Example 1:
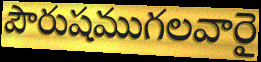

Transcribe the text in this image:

పౌరుషముగలవారై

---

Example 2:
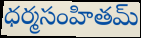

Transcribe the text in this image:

ధర్మసంహితమ్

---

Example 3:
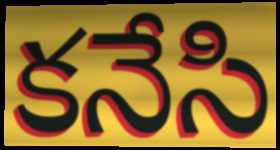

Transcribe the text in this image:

కనేసి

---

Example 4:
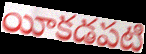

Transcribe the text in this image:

యీకడపటి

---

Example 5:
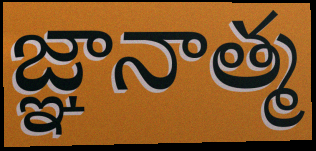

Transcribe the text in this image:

జ్ఞానాత్మ